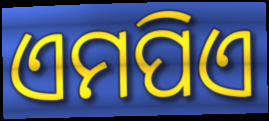
ଏମପିଏ